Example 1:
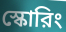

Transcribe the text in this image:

স্কোরিং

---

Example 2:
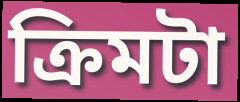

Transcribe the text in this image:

ক্রিমটা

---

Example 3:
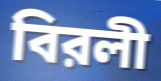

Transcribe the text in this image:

বিরলী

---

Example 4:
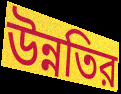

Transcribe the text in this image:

উন্নতির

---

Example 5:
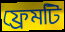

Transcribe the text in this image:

ফ্রেমটি